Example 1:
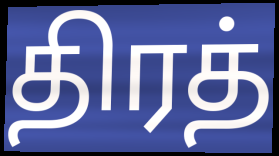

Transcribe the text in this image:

திரத்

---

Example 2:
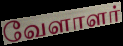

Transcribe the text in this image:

வேளாளர்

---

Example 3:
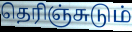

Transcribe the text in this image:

தெரிஞ்சுடும்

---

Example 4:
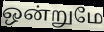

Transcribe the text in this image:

ஒன்றுமே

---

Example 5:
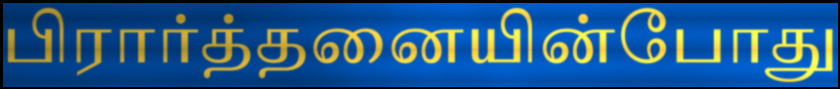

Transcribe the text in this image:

பிரார்த்தனையின்போது